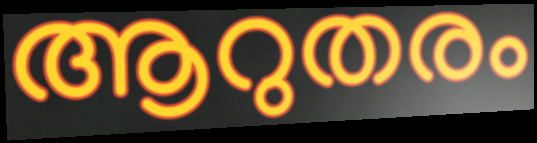
ആറുതരം